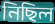
নিছিল